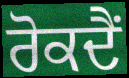
ਰੋਕਦੈਂ